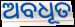
ଅବଧୂତ